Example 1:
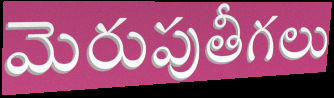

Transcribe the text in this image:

మెరుపుతీగలు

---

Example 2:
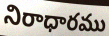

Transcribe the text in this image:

నిరాధారము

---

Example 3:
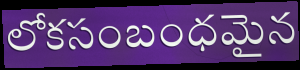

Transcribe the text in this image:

లోకసంబంధమైన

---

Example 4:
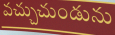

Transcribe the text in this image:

వచ్చుచుండును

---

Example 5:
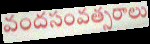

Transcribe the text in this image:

వందసంవత్సరాలు